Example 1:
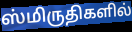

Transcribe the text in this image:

ஸ்மிருதிகளில்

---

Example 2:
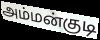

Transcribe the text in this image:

அம்மன்குடி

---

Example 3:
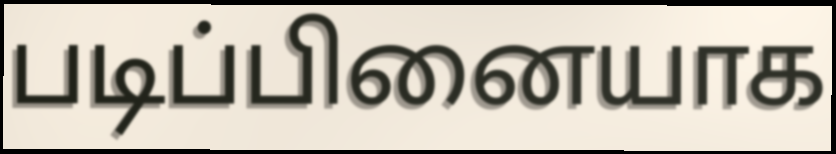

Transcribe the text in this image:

படிப்பினையாக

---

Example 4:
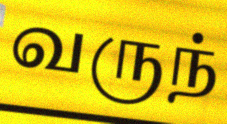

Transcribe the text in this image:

வருந்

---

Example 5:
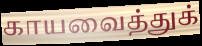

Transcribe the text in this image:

காயவைத்துக்